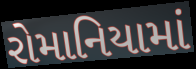
રોમાનિયામાં